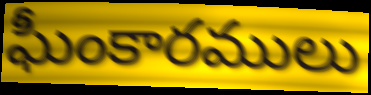
ఘీంకారములు